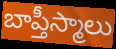
బాప్తీస్మాలు